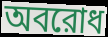
অবরোধ